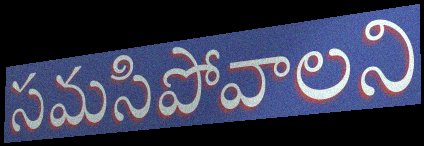
సమసిపోవాలని